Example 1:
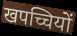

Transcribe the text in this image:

खपच्चियों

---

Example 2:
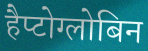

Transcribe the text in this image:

हैप्टोग्लोबिन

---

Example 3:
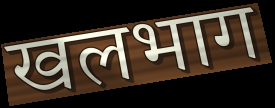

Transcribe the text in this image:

खलभाग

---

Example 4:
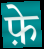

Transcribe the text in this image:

फ़े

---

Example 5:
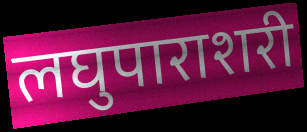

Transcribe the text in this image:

लघुपाराशरी